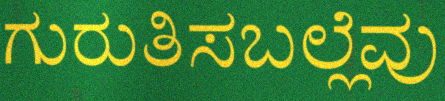
ಗುರುತಿಸಬಲ್ಲೆವು